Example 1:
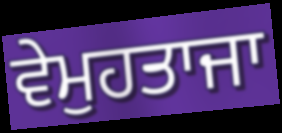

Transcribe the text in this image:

ਵੇਮੁਹਤਾਜਾ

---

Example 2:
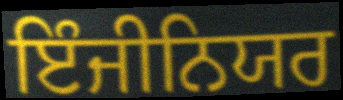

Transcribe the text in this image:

ਇੰਜੀਨਿਯਰ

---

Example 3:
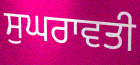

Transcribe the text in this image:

ਸੁਘਰਾਵਤੀ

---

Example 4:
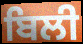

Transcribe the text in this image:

ਬਿਲੀ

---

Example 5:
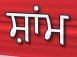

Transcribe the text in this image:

ਸ਼ਾਂਮ